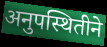
अनुपस्थितीने